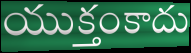
యుక్తంకాదు